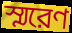
স্মরেণ